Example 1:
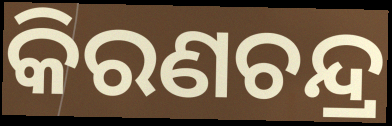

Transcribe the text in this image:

କିରଣଚନ୍ଦ୍ର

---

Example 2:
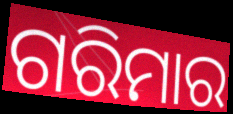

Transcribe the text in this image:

ଗରିମାର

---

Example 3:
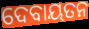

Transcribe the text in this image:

ଦେବାୟତନ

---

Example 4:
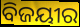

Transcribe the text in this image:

ବିଜୟୀର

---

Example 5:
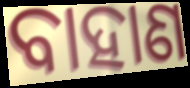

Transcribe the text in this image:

ବାହାଣ